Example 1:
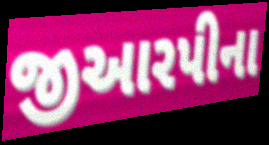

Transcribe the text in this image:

જીઆરપીના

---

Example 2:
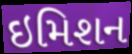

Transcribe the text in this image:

ઇમિશન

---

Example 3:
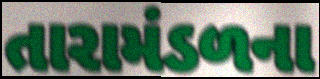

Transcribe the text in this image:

તારામંડળના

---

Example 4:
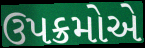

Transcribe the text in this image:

ઉપક્રમોએ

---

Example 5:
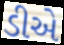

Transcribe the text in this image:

ડીએ